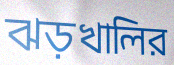
ঝড়খালির